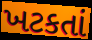
ખટકતાં